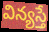
విన్యస్తే